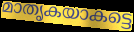
മാതൃകയാകട്ടെ